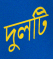
দুলটি